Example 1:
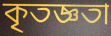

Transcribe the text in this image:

কৃতজ্ঞতা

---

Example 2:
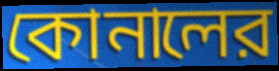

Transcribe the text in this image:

কোনালের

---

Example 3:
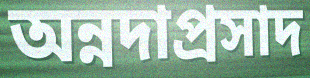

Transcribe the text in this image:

অন্নদাপ্রসাদ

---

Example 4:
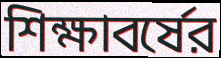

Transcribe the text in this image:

শিক্ষাবর্ষের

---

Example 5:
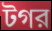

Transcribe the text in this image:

টগর